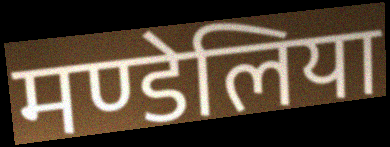
मण्डेलिया